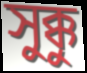
সুক্কু